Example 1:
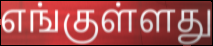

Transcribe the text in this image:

எங்குள்ளது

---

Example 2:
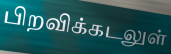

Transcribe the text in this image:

பிறவிக்கடலுள்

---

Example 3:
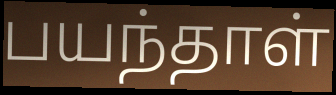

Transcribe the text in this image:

பயந்தாள்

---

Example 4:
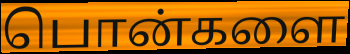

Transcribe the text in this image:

பொன்களை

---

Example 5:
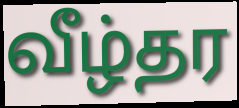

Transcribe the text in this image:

வீழ்தர